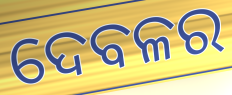
ଦେବଳର